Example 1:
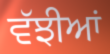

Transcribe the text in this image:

ਵੱਝੀਆਂ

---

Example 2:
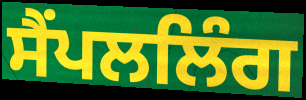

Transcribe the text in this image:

ਸੈਂਪਲਲਿੰਗ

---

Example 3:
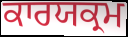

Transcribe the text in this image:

ਕਾਰਯਕ੍ਰਮ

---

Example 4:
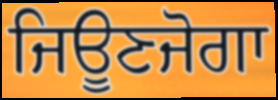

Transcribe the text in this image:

ਜਿਊਣਜੋਗਾ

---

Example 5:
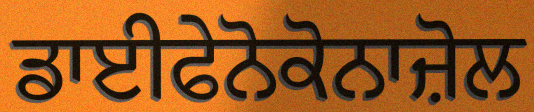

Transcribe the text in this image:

ਡਾਈਫੇਨੋਕੋਨਾਜ਼ੋਲ